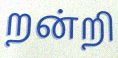
றன்றி